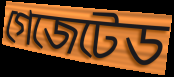
গেজেটেড